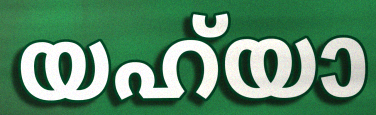
യഹ്‌യാ